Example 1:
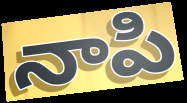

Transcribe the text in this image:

నాపి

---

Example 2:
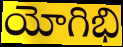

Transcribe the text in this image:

యోగిభి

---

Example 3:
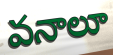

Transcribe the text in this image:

వనాలూ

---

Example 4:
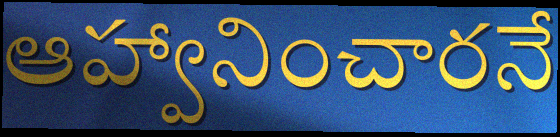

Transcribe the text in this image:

ఆహ్వానించారనే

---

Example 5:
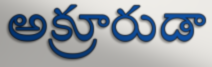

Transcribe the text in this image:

అక్రూరుడా